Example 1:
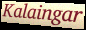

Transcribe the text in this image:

Kalaingar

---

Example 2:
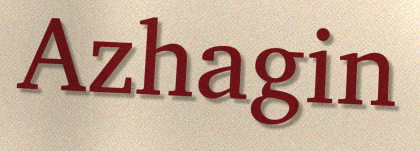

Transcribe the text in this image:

Azhagin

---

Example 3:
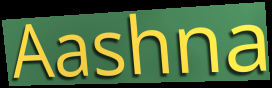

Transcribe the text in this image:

Aashna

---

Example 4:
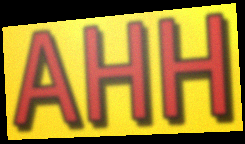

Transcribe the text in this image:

AHH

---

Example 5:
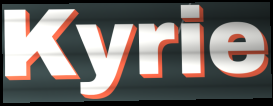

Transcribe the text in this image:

Kyrie